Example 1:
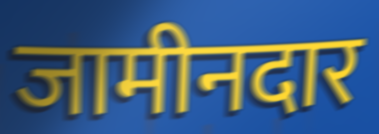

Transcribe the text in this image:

जामीनदार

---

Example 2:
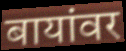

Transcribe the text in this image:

बायांवर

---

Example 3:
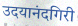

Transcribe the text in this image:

उदयानंदगिरी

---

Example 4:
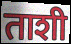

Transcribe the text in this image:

ताशी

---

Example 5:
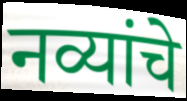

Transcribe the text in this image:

नव्यांचे